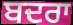
ਬਦਰਾ